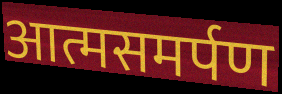
आत्‍मसमर्पण